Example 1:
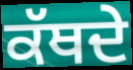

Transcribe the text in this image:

ਕੱਥਦੇ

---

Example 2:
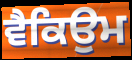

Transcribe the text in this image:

ਵੈਕਿਉਮ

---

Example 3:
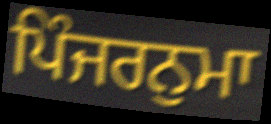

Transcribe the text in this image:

ਪਿੰਜਰਨੁਮਾ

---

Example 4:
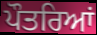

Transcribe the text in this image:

ਪੌਤਰਿਆਂ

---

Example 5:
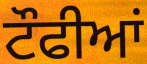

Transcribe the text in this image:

ਟੌਫੀਆਂ